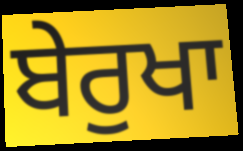
ਬੇਰੁਖਾ